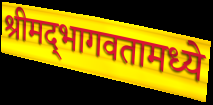
श्रीमद्‌भागवतामध्ये